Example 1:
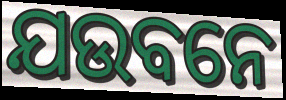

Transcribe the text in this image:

ଯଉବନେ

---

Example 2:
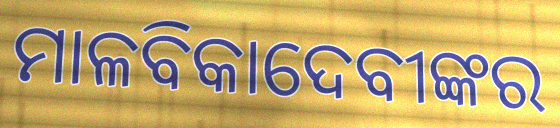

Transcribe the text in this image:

ମାଳବିକାଦେବୀଙ୍କର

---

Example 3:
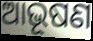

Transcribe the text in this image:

ଆଭୂଷଣ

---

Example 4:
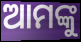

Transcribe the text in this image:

ଆମଙ୍କୁ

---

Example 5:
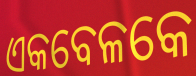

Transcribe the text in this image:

ଏକବେଳକେ